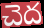
చెద